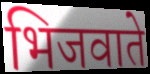
भिजवाते